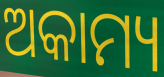
ଅକାମ୍ୟ